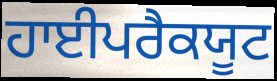
ਹਾਈਪਰੈਕਯੂਟ